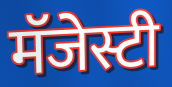
मॅजेस्टी